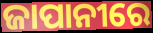
ଜାପାନୀରେ